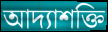
আদ্যাশক্তি